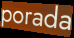
porada